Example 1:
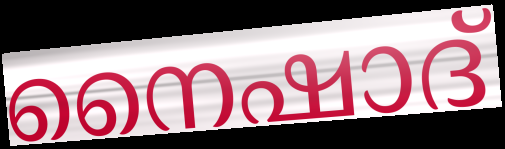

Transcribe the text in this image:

നൈഷാദ്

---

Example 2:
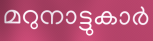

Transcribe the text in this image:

മറുനാട്ടുകാർ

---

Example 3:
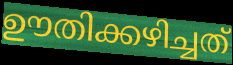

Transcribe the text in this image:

ഊതിക്കഴിച്ചത്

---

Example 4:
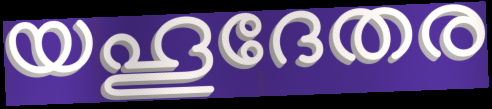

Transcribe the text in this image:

യഹൂദേതര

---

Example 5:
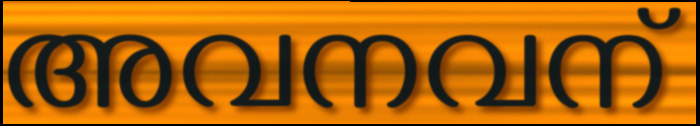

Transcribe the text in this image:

അവനവന്